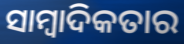
ସାମ୍ୱାଦିକତାର